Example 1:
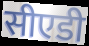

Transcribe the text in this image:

सीएडी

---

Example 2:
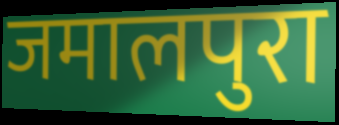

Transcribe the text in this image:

जमालपुरा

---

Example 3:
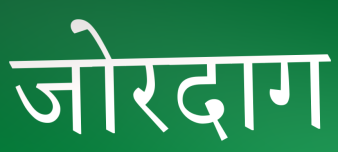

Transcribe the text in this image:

जोरदाग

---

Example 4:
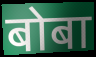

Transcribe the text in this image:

बोबा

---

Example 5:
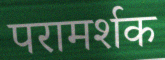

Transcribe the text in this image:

परामर्शक